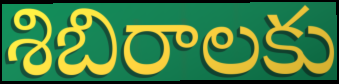
శిబిరాలకు